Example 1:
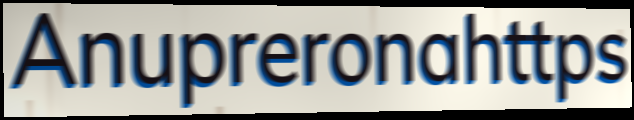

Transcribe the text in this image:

Anupreronahttps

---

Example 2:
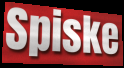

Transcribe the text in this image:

Spiske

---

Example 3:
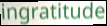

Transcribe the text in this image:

ingratitude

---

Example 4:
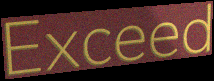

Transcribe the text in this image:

Exceed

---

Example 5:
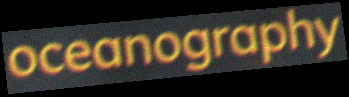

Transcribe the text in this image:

oceanography